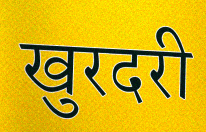
खुरदरी